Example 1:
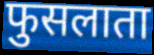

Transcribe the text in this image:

फुसलाता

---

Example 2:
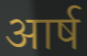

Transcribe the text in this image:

आर्ष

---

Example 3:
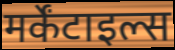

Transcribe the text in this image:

मर्केंटाइल्स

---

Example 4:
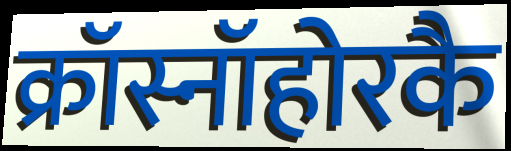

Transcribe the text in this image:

क्रॉस्नॉहोरकै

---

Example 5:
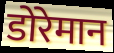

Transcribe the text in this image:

डोरेमान